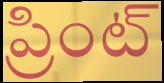
ప్రింట్